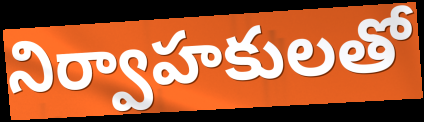
నిర్వాహకులతో